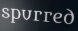
spurred